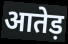
आतेड़